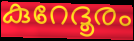
കുറേദൂരം